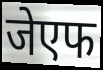
जेएफ